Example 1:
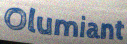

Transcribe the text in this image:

Olumiant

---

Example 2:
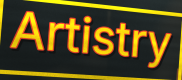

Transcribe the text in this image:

Artistry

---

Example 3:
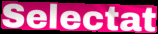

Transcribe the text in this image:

Selectat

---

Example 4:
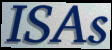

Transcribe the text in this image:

ISAs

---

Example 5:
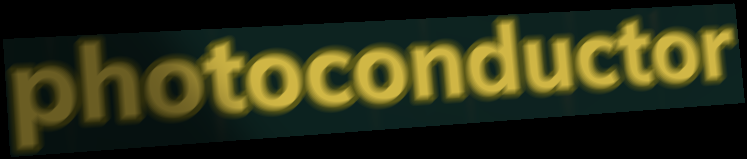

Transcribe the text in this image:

photoconductor